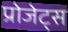
प्रोजेट्स